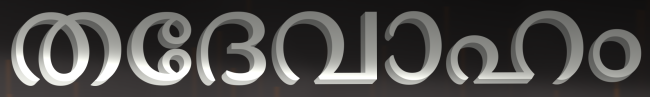
തദേവാഹം